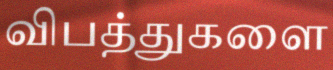
விபத்துகளை